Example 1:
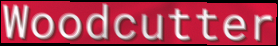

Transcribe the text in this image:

Woodcutter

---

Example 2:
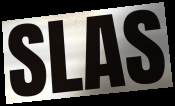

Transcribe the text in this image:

SLAS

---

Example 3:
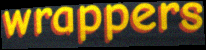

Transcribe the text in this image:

wrappers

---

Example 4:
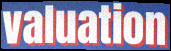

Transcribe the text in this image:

valuation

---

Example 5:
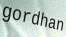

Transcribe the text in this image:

gordhan